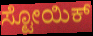
ಸ್ಟೋಯಿಕ್